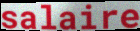
salaire